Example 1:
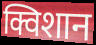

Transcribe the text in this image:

क्विशान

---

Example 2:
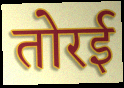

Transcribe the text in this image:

तोरई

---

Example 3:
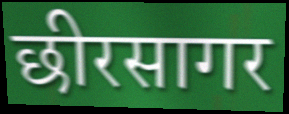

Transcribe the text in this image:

छीरसागर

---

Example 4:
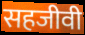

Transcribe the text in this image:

सहजीवी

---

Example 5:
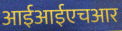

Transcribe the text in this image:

आईआईएचआर